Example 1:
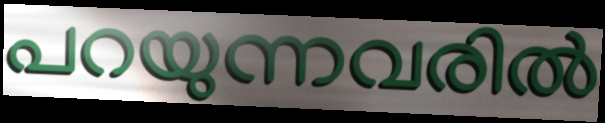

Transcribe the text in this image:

പറയുന്നവരിൽ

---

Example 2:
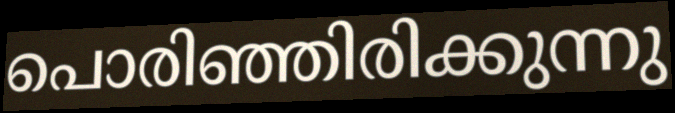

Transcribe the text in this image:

പൊരിഞ്ഞിരിക്കുന്നു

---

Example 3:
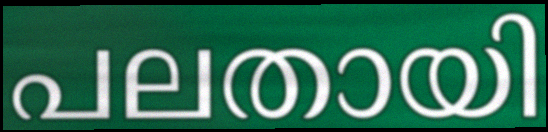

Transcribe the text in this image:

പലതായി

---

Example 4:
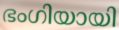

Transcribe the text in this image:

ഭംഗിയായി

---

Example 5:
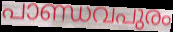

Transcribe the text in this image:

പാണ്ഡവപുരം